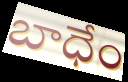
బాధేం